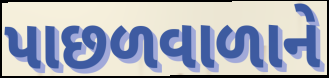
પાછળવાળાને